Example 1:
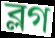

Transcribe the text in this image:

ব্লগ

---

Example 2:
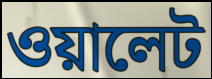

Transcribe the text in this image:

ওয়ালেট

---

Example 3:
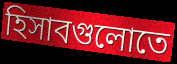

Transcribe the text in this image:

হিসাবগুলোতে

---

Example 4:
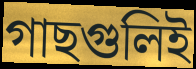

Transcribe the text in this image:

গাছগুলিই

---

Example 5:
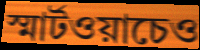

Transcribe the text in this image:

স্মার্টওয়াচেও